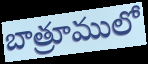
బాత్రూములో